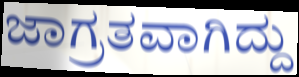
ಜಾಗ್ರತವಾಗಿದ್ದು